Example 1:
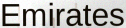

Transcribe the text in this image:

Emirates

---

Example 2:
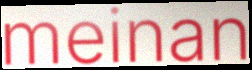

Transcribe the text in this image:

meinan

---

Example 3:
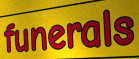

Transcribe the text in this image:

funerals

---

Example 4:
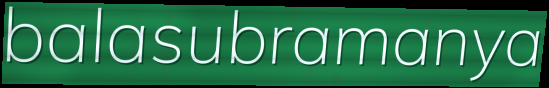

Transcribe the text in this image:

balasubramanya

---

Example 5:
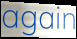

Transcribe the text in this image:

again